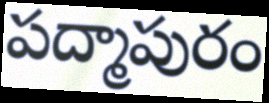
పద్మాపురం